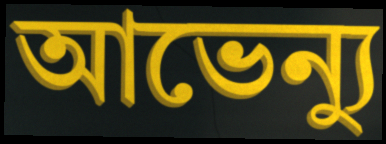
আভেন্যু